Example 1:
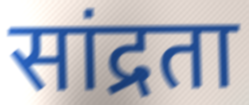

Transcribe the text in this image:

सांद्रता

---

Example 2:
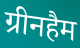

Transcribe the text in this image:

ग्रीनहैम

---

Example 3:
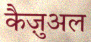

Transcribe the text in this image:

कैज़ुअल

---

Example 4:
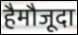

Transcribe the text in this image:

हैमौजूदा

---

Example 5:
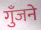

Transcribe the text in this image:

गुँजने